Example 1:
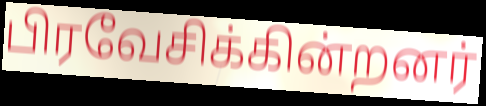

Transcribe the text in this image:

பிரவேசிக்கின்றனர்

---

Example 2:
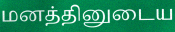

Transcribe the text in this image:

மனத்தினுடைய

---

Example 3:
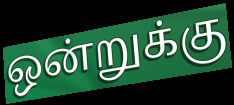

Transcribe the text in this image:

ஒன்றுக்கு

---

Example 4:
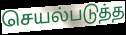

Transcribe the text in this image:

செயல்படுத்த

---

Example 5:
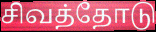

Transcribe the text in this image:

சிவத்தோடு